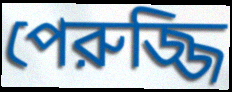
পেরুজ্জি